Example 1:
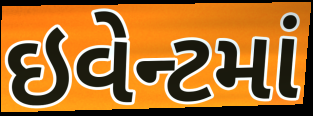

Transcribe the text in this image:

ઇવેન્ટમાં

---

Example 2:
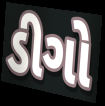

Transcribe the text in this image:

ડીગો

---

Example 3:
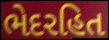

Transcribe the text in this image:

ભેદરહિત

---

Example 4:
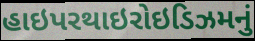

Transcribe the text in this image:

હાઇપરથાઇરોઇડિઝમનું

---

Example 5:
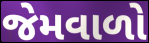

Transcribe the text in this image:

જેમવાળો